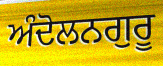
ਅੰਦੋਲਨਗੁਰੂ